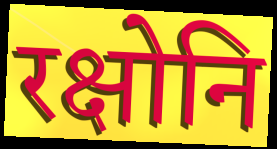
रक्षोनि